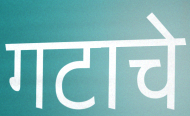
गटाचे